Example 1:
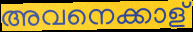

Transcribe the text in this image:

അവനെക്കാള്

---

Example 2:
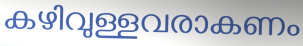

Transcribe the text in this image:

കഴിവുള്ളവരാകണം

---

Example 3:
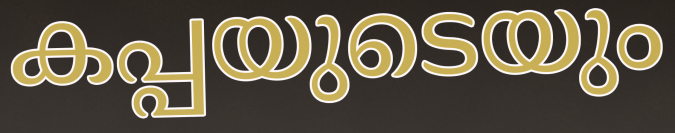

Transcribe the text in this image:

കപ്പയുടെയും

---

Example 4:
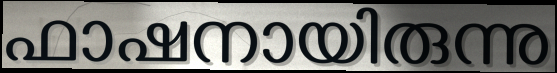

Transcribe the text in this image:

ഫാഷനായിരുന്നു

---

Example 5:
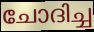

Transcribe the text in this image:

ചോദിച്ച